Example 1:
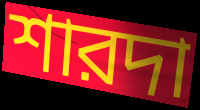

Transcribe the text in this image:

শারদা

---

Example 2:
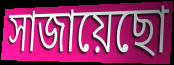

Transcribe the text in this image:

সাজায়েছো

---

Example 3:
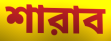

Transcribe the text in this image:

শারাব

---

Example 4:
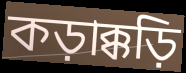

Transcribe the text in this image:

কড়াক্কড়ি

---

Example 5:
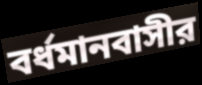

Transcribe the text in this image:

বর্ধমানবাসীর